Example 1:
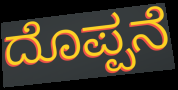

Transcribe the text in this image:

ದೊಪ್ಪನೆ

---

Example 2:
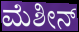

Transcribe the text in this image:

ಮೆಶೀನ್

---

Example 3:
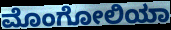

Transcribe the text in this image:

ಮೊಂಗೋಲಿಯಾ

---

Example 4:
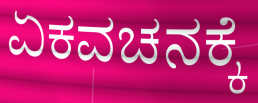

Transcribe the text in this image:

ಏಕವಚನಕ್ಕೆ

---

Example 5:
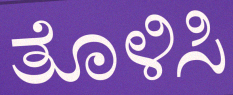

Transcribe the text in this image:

ತೊಳಿಸಿ